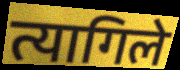
त्यागिले